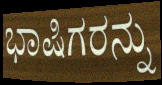
ಭಾಷಿಗರನ್ನು